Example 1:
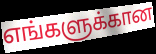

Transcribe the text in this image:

எங்களுக்கான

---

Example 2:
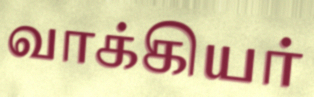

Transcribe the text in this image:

வாக்கியர்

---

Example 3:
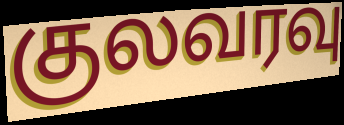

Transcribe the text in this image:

குலவரவு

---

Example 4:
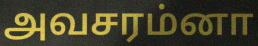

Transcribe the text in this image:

அவசரம்னா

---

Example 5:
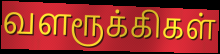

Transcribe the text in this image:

வளரூக்கிகள்